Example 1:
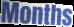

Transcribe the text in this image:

Months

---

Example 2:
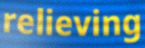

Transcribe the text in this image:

relieving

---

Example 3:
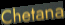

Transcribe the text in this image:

Chetana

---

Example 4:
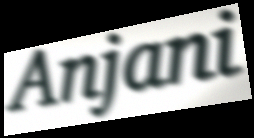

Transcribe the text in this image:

Anjani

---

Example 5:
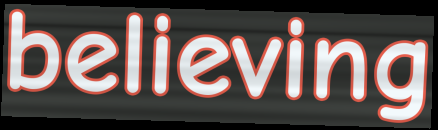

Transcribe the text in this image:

believing